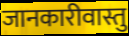
जानकारीवास्तु